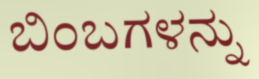
ಬಿಂಬಗಳನ್ನು